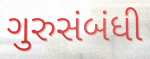
ગુરુસંબંધી